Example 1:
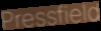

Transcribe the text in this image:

Pressfield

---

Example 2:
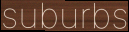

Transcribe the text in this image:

suburbs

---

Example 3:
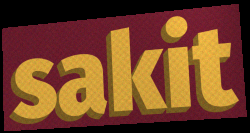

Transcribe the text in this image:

sakit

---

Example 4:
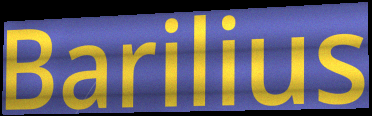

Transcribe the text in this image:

Barilius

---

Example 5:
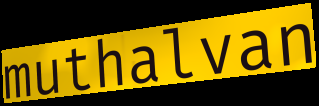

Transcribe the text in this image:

muthalvan